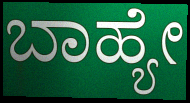
ಬಾಹ್ಯೇ